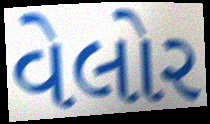
વેલોર